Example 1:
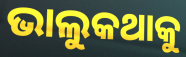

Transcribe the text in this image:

ଭାଲୁକଥାକୁ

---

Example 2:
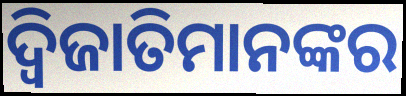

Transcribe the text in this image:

ଦ୍ୱିଜାତିମାନଙ୍କର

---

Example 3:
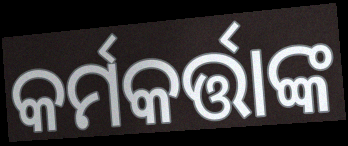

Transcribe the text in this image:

କର୍ମକର୍ତ୍ତାଙ୍କ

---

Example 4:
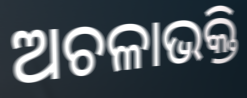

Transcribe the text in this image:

ଅଚଳାଭକ୍ତି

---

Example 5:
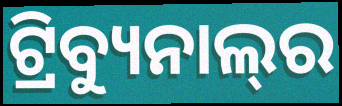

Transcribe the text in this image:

ଟ୍ରିବ୍ୟୁନାଲ୍‍ର